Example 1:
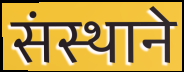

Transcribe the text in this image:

संस्थाने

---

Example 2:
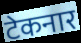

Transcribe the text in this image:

टेकनार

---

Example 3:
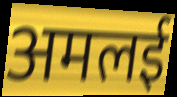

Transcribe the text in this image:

अमलई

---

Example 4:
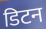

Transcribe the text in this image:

डिटन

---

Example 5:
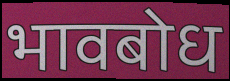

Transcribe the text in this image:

भावबोध